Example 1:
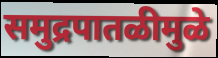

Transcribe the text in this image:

समुद्रपातळीमुळे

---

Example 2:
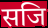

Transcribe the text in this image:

सजि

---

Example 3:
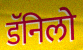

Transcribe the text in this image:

डॅनिलो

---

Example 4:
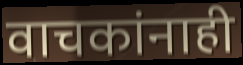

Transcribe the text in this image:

वाचकांनाही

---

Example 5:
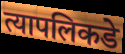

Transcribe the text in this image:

त्यापलिकडे